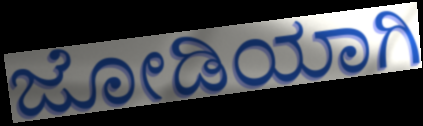
ಜೋಡಿಯಾಗಿ